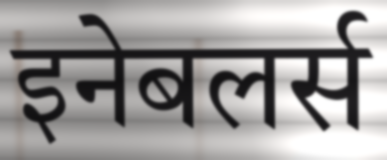
इनेबलर्स